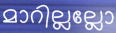
മാറില്ലല്ലോ